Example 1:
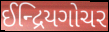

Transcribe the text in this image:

ઈન્દ્રિયગોચર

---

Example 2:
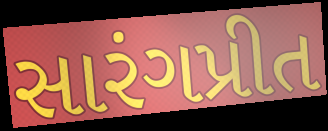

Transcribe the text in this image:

સારંગપ્રીત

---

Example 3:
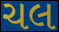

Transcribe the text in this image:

ચલ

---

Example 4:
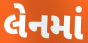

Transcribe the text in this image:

લેનમાં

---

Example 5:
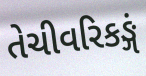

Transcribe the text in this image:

તેચીવરિકઙ્ગં